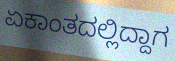
ಏಕಾಂತದಲ್ಲಿದ್ದಾಗ